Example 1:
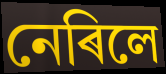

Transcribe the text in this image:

নেৰিলে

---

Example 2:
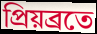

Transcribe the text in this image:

প্ৰিয়ব্ৰতে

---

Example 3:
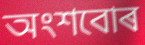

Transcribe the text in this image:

অংশবোৰ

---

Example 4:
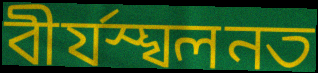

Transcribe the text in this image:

বীৰ্যস্খলনত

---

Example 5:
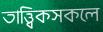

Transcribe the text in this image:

তাত্ত্বিকসকলে